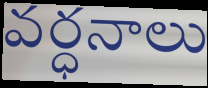
వర్ధనాలు